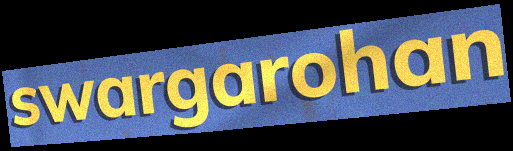
swargarohan